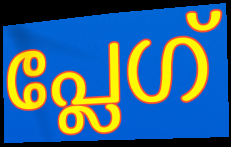
പ്ലേഗ്